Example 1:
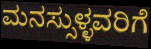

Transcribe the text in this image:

ಮನಸ್ಸುಳ್ಳವರಿಗೆ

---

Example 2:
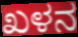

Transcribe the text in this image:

ಖಳನ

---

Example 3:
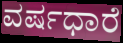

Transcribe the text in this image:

ವರ್ಷಧಾರೆ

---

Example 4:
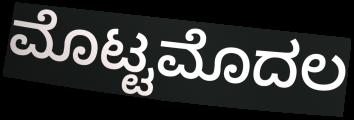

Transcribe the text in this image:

ಮೊಟ್ಟಮೊದಲ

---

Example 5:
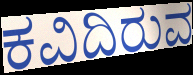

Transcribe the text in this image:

ಕವಿದಿರುವ